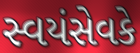
સ્વયંસેવકે